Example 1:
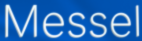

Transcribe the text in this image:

Messel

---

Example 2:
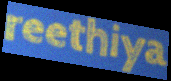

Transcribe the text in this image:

reethiya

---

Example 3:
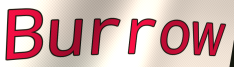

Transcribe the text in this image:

Burrow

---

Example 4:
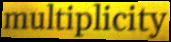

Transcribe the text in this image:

multiplicity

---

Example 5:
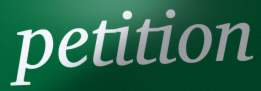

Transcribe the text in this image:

petition